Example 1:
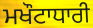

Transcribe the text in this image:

ਮਖੌਟਾਧਾਰੀ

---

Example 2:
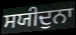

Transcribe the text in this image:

ਸਯੀਦੁਨਾ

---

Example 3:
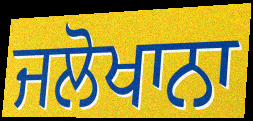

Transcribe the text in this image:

ਜਲੋਖਾਨਾ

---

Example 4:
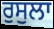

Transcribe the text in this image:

ਰੁਸੁਲਾ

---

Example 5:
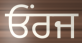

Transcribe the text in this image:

ਓਂਰਜ